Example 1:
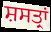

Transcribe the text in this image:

ਸ਼ਸਤ੍ਰਾਂ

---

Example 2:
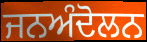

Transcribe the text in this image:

ਜਨਅੰਦੋਲਨ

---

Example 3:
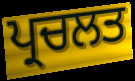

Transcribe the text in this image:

ਪ੍ਰਚਲਤ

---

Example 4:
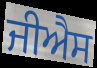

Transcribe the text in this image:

ਜੀਐਸ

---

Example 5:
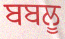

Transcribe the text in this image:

ਬਬਲੂ